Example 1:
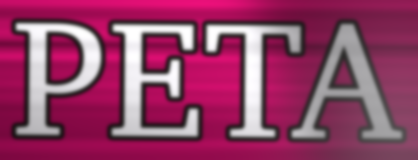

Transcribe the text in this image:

PETA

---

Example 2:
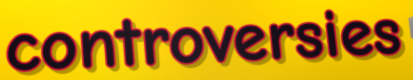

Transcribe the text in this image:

controversies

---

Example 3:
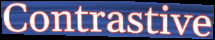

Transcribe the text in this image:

Contrastive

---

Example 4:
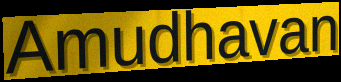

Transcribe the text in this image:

Amudhavan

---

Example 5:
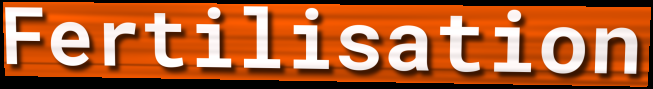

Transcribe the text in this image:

Fertilisation